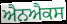
ਐਨਐਕਸ